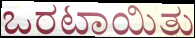
ಒರಟಾಯಿತು